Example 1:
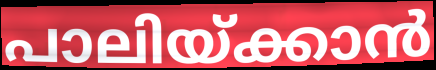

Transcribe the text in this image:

പാലിയ്ക്കാൻ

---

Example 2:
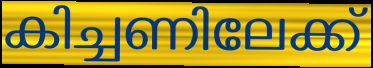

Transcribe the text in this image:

കിച്ചണിലേക്ക്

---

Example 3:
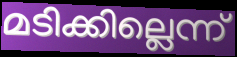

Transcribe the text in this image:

മടിക്കില്ലെന്ന്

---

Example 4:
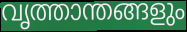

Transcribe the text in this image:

വൃത്താന്തങ്ങളും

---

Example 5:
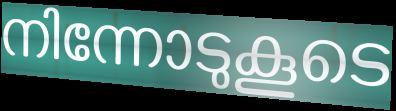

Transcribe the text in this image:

നിന്നോടുകൂടെ